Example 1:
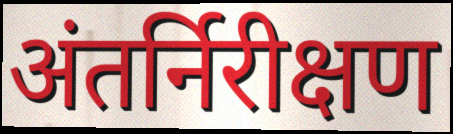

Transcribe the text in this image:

अंतर्निरीक्षण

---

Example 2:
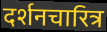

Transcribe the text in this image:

दर्शनचारित्र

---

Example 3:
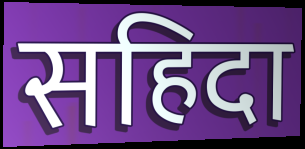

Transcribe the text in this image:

सहिदा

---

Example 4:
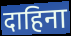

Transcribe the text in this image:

दाहिना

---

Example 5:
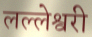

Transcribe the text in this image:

लल्लेश्वरी